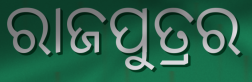
ରାଜପୁତ୍ରର